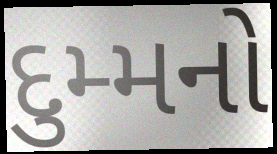
દુમ્મનો